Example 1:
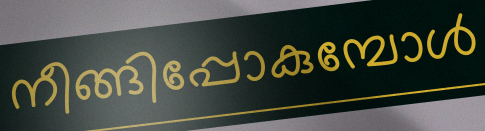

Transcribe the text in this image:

നീങ്ങിപ്പോകുമ്പോൾ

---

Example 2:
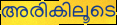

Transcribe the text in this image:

അരികിലൂടെ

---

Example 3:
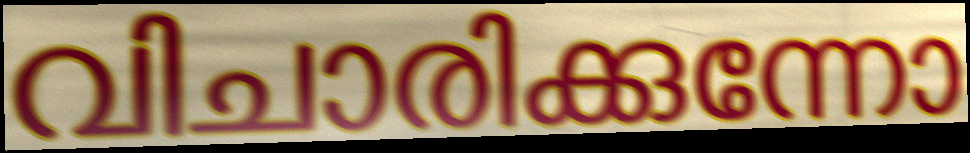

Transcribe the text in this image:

വിചാരിക്കുന്നോ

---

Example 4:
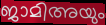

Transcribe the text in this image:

ജാമിഅയും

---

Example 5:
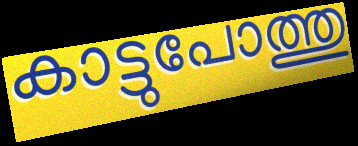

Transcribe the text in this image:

കാട്ടുപോത്തു